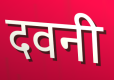
दवनी